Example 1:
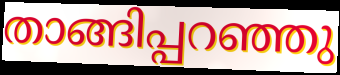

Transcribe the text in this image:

താങ്ങിപ്പറഞ്ഞു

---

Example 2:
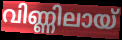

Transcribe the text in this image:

വിണ്ണിലായ്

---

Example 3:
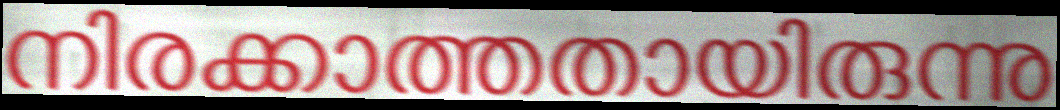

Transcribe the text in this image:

നിരക്കാത്തതായിരുന്നു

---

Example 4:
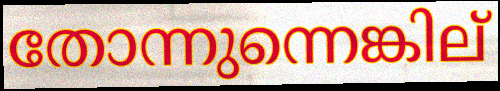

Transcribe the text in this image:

തോന്നുന്നെങ്കില്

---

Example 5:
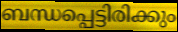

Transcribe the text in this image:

ബന്ധപ്പെട്ടിരിക്കും